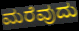
ಮರೆವುದು